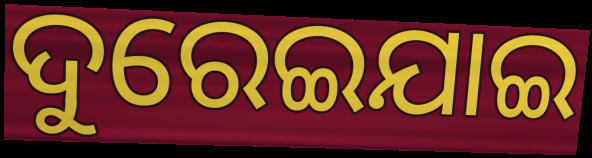
ଦୁରେଇଯାଇ